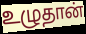
உழுதான்